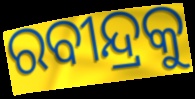
ରବୀନ୍ଦ୍ରକୁ